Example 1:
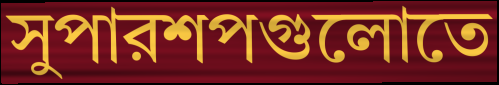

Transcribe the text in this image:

সুপারশপগুলোতে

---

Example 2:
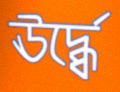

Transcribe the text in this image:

ঊর্দ্ধ্বে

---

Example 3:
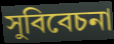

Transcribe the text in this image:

সুবিবেচনা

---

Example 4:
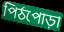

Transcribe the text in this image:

পিঠপোড়া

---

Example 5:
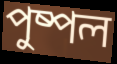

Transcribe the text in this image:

পুষ্পল